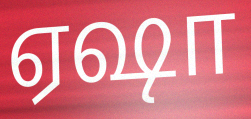
ஏஷா